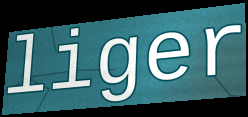
liger